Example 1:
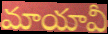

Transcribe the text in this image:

మాయావీ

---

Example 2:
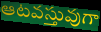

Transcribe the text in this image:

ఆటవస్తువుగా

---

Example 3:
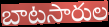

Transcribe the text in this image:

బాటసారుల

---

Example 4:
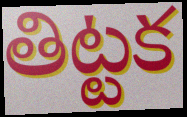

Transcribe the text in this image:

తిట్టక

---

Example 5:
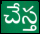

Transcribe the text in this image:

చేస్త